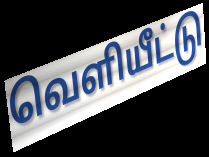
வெளியீட்டு